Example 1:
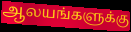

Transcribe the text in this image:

ஆலயங்களுக்கு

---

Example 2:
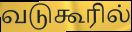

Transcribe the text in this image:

வடுகூரில்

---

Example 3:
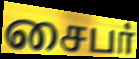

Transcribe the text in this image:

சைபர்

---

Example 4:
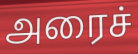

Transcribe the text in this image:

அரைச்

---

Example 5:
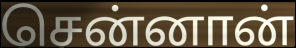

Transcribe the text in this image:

சென்னான்